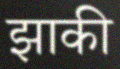
झाकी